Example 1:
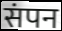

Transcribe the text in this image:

संपन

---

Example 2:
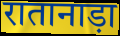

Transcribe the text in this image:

रातानाड़ा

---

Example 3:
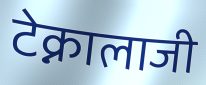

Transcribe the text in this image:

टेक्नालाजी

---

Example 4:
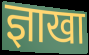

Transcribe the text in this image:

ज्ञाखा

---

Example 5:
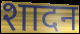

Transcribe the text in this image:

शादन